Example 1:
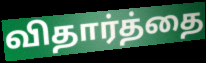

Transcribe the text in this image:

விதார்த்தை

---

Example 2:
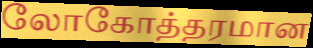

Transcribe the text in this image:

லோகோத்தரமான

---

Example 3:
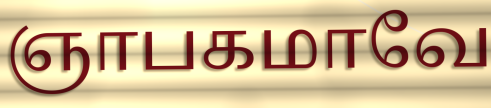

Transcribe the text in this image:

ஞாபகமாவே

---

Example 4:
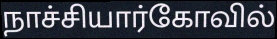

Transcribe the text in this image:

நாச்சியார்கோவில்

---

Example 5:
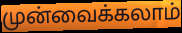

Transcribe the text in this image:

முன்வைக்கலாம்